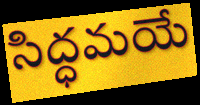
సిద్ధమయే